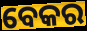
ବେକର